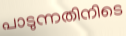
പാടുന്നതിനിടെ